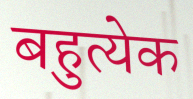
बहुत्येक